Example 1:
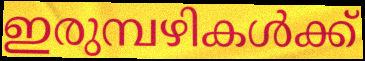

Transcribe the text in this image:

ഇരുമ്പഴികൾക്ക്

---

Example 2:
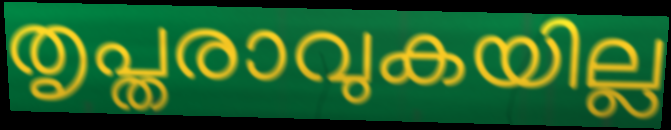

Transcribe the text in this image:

തൃപ്തരാവുകയില്ല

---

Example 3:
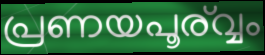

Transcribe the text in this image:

പ്രണയപൂര്വ്വം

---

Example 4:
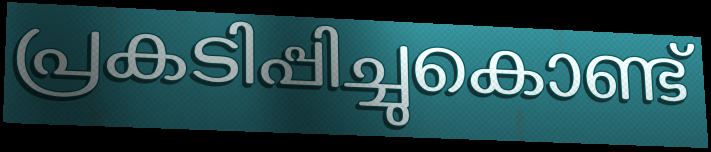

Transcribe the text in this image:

പ്രകടിപ്പിച്ചുകൊണ്ട്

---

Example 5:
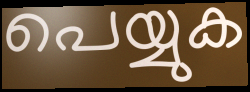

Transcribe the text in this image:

പെയ്യുക